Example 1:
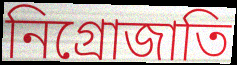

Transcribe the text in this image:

নিগ্রোজাতি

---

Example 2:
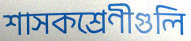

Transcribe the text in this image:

শাসকশ্রেণীগুলি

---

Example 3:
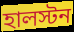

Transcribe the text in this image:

হালস্টন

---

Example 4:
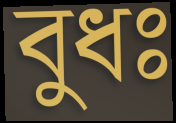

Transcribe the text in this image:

বুধঃ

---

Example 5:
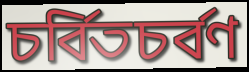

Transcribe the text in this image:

চর্বিতচর্বণ